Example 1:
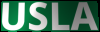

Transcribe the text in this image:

USLA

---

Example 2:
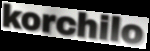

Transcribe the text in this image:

korchilo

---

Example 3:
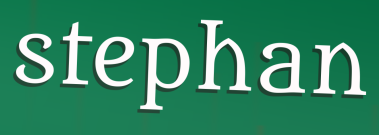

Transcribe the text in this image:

stephan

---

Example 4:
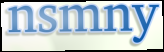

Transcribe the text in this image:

nsmny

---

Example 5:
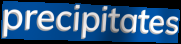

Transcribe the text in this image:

precipitates